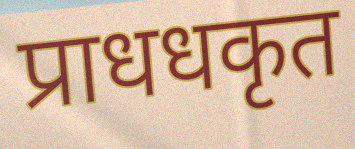
प्राधधकृत